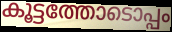
കൂട്ടത്തോടൊപ്പം